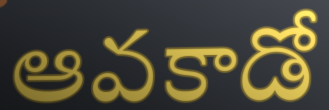
ఆవకాడో